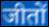
जीतों